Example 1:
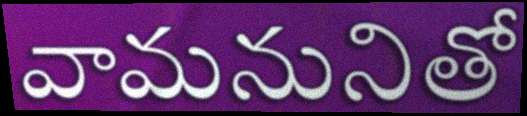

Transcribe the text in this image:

వామనునితో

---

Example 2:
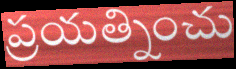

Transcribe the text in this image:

ప్రయత్నించు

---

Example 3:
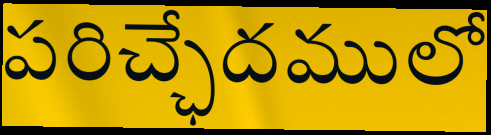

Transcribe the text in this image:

పరిచ్ఛేదములో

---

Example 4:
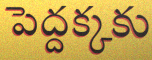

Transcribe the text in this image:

పెద్దక్కకు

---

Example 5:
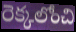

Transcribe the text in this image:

రెక్కలోంచి